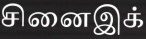
சினைஇக்